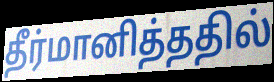
தீர்மானித்ததில்